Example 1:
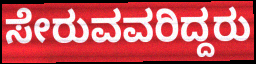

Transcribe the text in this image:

ಸೇರುವವರಿದ್ದರು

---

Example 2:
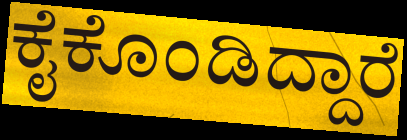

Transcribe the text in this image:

ಕೈಕೊಂಡಿದ್ದಾರೆ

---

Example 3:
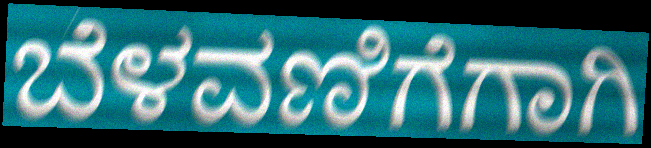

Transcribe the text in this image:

ಬೆಳವಣಿಗೆಗಾಗಿ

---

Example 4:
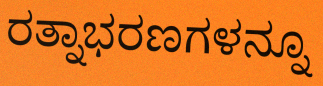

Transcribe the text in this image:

ರತ್ನಾಭರಣಗಳನ್ನೂ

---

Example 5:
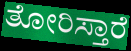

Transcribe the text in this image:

ತೋರಿಸ್ತಾರೆ